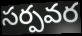
సర్పవర